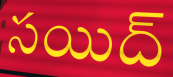
సయిద్